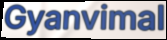
Gyanvimal